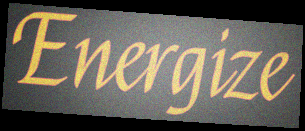
Energize